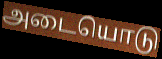
அடையொடு